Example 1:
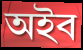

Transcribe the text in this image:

অইব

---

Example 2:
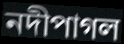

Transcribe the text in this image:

নদীপাগল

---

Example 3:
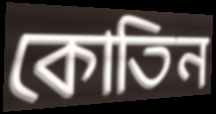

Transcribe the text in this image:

কোতিন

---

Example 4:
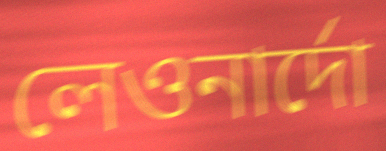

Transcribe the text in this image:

লেওনার্দো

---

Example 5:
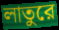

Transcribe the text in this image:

লাতুরে